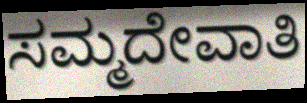
ಸಮ್ಮದೇವಾತಿ